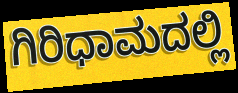
ಗಿರಿಧಾಮದಲ್ಲಿ